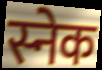
स्‍नेक